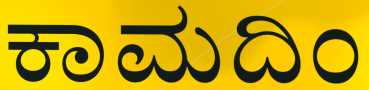
ಕಾಮದಿಂ